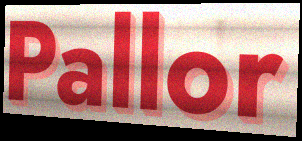
Pallor